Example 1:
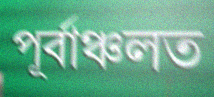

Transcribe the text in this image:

পূৰ্বাঞ্চলত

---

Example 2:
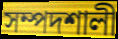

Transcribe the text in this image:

সম্পদশালী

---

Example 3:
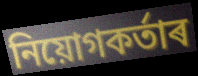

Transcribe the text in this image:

নিয়োগকৰ্তাৰ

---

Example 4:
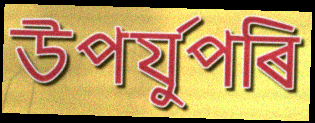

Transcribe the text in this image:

উপৰ্যুপৰি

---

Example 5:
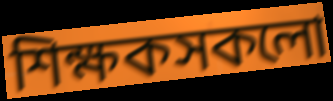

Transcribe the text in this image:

শিক্ষকসকলো